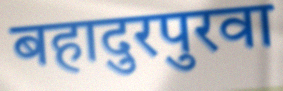
बहादुरपुरवा